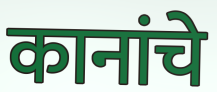
कानांचे